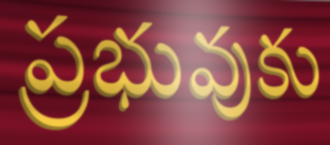
ప్రభువుకు